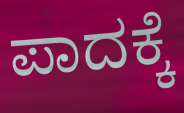
ಪಾದಕ್ಕೆ